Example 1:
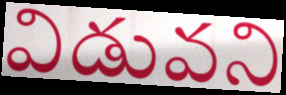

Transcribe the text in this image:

విడువని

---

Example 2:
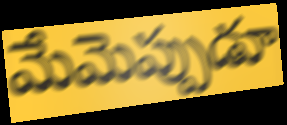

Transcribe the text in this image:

మేమెప్పుడూ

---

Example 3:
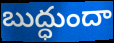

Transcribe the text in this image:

బుద్ధుందా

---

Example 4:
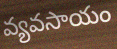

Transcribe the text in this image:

వ్యవసాయం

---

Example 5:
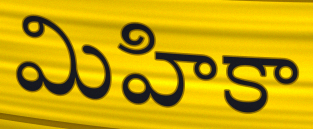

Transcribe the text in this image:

మిహికా